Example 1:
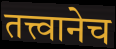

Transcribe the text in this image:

तत्त्वानेच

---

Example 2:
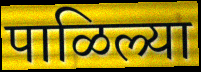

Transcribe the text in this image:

पाळिल्या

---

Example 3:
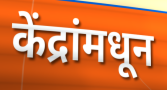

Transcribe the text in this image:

केंद्रांमधून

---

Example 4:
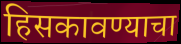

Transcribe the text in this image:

हिसकावण्याचा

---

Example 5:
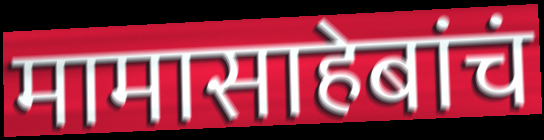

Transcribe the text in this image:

मामासाहेबांचं